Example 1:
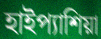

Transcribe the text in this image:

হাইপ্যাশিয়া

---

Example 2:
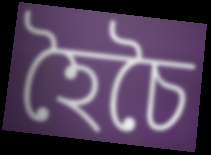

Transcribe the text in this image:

হৈচৈ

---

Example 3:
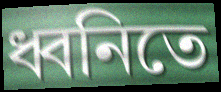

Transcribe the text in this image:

ধ্বনিতে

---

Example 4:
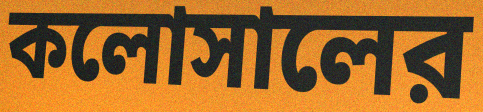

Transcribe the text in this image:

কলোসালের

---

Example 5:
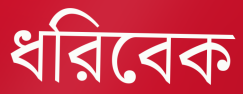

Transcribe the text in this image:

ধরিবেক